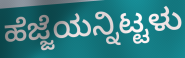
ಹೆಜ್ಜೆಯನ್ನಿಟ್ಟಳು